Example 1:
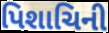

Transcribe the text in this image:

પિશાચિની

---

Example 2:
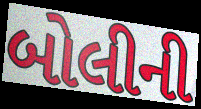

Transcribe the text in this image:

બોલીની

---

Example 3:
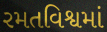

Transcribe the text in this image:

રમતવિશ્વમાં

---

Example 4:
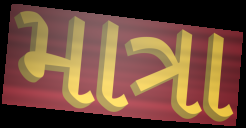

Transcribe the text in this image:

માત્રા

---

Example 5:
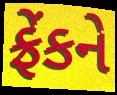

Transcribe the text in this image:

ફ્રેંકને